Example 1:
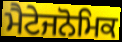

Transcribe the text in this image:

ਮੈਟੇਜਨੋਮਿਕ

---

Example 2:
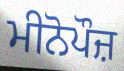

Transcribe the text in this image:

ਮੀਨੋਪੌਜ਼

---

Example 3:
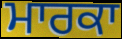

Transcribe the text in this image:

ਮਾਰਕਾ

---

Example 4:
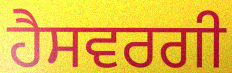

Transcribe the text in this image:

ਹੈਸਵਰਗੀ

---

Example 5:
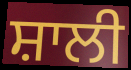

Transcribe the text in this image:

ਸ਼ਾਲੀ